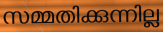
സമ്മതിക്കുന്നില്ല